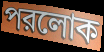
পরলোক